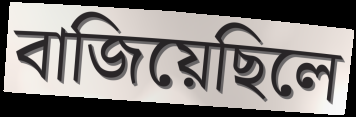
বাজিয়েছিলে